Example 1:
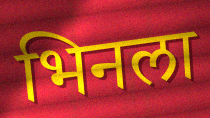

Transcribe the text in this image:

भिनला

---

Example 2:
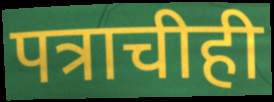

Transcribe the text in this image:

पत्राचीही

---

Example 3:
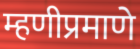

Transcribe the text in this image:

म्हणीप्रमाणे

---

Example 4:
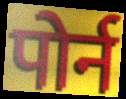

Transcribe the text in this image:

पोर्न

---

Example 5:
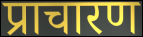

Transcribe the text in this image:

प्राचारण